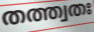
തത്ത്വതഃ